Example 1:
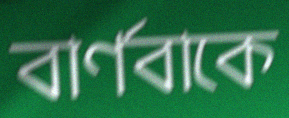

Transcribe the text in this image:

বার্ণবাকে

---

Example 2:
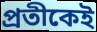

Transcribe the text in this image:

প্রতীকেই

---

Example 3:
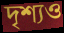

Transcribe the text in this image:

দৃশ্যও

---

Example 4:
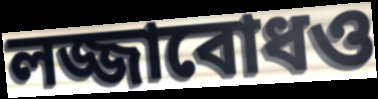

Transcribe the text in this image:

লজ্জাবোধও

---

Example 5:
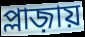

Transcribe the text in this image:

প্লাজ়ায়